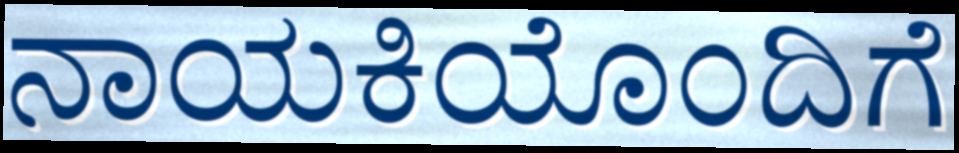
ನಾಯಕಿಯೊಂದಿಗೆ